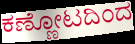
ಕಣ್ಣೋಟದಿಂದ